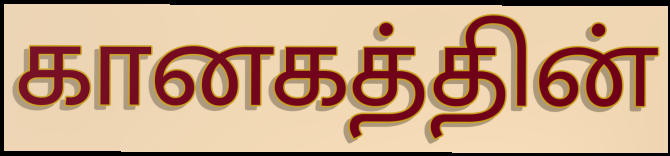
கானகத்தின்